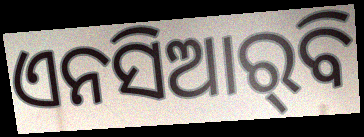
ଏନସିଆର୍‌ବି